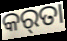
କର୍‌ତା